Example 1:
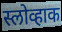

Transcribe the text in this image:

स्लोव्हाक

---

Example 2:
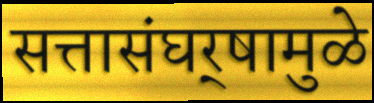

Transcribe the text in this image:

सत्तासंघर्षामुळे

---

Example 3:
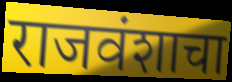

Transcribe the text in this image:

राजवंशाचा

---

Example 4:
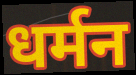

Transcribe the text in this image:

धर्मन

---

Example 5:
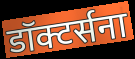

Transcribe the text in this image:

डॉक्टर्सना